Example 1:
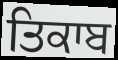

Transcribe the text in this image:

ਤਿਕਾਬ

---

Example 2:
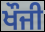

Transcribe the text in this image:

ਖੌਜੀ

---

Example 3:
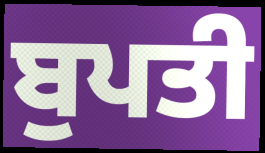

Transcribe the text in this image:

ਬੁਪਤੀ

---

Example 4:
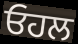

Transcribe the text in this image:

ਓਹਲ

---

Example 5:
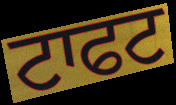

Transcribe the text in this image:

ਟਾਫਟ